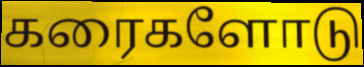
கரைகளோடு